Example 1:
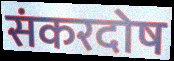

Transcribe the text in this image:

संकरदोष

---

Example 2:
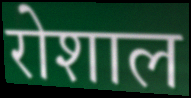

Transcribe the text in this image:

रोशाल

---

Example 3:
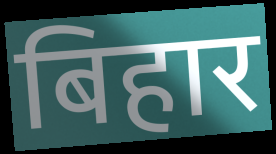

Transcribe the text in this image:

बिहार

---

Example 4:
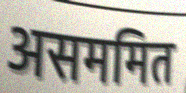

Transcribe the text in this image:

असममित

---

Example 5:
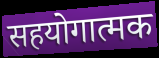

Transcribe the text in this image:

सहयोगात्मक